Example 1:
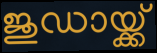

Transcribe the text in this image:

ജുഡായ്ക്ക്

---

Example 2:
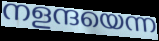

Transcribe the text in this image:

നളന്ദയെന്ന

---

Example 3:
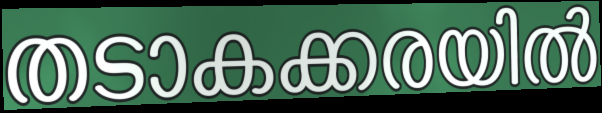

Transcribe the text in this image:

തടാകക്കരയിൽ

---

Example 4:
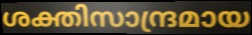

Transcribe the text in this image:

ശക്തിസാന്ദ്രമായ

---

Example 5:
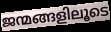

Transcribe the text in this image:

ജന്മങ്ങളിലൂടെ